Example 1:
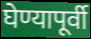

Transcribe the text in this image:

घेण्यापूर्वी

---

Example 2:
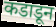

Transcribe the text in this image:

कडाडून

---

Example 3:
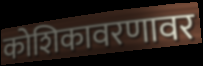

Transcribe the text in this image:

कोशिकावरणावर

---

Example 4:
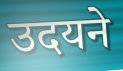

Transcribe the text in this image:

उदयने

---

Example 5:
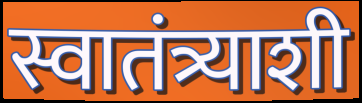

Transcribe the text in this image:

स्वातंत्र्याशी